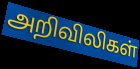
அறிவிலிகள்